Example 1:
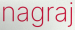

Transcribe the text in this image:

nagraj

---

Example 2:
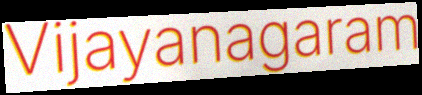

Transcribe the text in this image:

Vijayanagaram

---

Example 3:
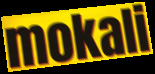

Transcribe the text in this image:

mokali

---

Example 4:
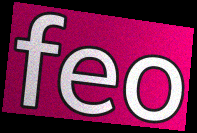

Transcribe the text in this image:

feo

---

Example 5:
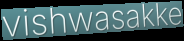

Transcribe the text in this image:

vishwasakke